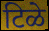
टिळे